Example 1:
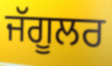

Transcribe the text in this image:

ਜੱਗੂਲਰ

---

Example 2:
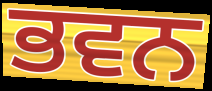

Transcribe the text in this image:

ਭਵਨ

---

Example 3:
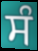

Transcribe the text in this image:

ਸੰ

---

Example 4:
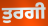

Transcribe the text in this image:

ਤੁਰਗੀ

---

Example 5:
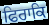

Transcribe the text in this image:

ਫਿਰਾਕਿ